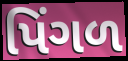
પિંગળ